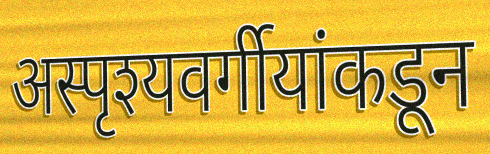
अस्पृश्यवर्गीयांकडून